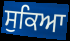
ਸੁਕਿਆ